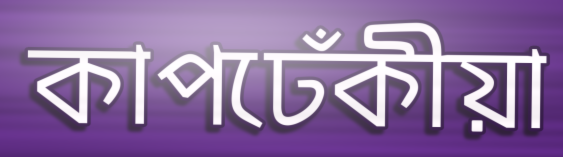
কাপঢেঁকীয়া